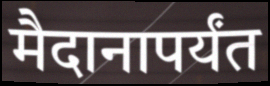
मैदानापर्यंत